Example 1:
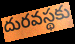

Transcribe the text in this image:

దురవస్థకు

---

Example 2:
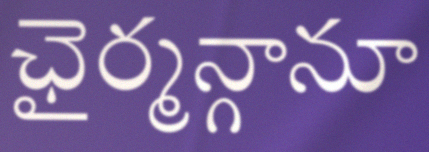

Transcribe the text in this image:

ఛైర్మన్గానూ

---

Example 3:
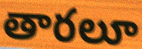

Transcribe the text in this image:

తారలూ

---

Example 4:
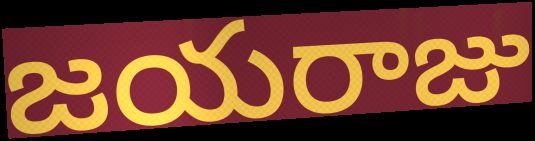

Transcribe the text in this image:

జయరాజు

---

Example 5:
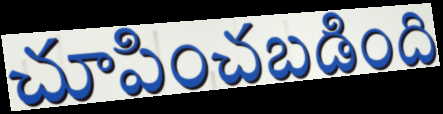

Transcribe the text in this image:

చూపించబడింది